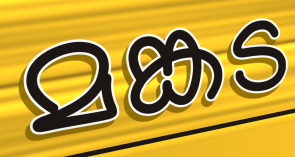
മങ്കട